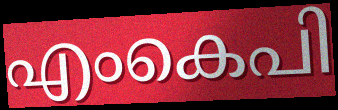
എംകെപി